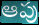
ఆపు